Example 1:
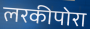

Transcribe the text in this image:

लरकीपोरा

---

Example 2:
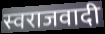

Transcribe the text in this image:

स्वराजवादी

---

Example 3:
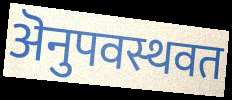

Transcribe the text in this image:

ऄनुपवस्थवत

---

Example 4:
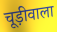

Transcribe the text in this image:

चूड़ीवाला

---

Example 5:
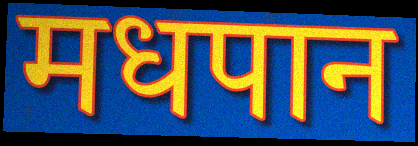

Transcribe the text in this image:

मधपान